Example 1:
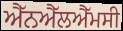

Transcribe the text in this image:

ਐੱਨਐੱਲਐੱਮਸੀ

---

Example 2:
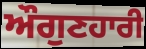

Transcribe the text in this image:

ਔਗੁਣਹਾਰੀ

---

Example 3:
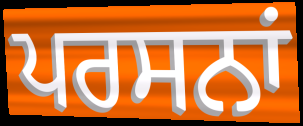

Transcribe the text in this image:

ਪਰਸਨਾਂ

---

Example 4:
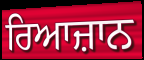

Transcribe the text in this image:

ਰਿਆਜ਼ਾਨ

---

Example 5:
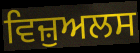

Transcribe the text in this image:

ਵਿਜ਼ੁਅਲਸ